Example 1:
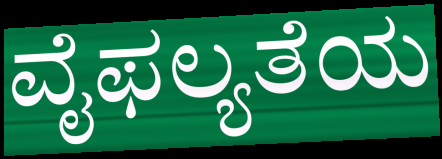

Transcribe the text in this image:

ವೈಫಲ್ಯತೆಯ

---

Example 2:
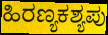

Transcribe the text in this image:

ಹಿರಣ್ಯಕಶ್ಯಪು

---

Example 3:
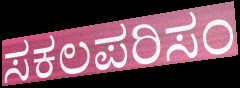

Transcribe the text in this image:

ಸಕಲಪರಿಸಂ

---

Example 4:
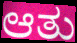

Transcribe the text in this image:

ಆತು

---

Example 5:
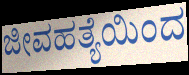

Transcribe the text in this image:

ಜೀವಹತ್ಯೆಯಿಂದ